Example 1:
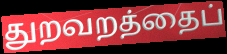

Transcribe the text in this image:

துறவறத்தைப்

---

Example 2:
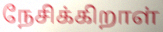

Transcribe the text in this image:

நேசிக்கிறாள்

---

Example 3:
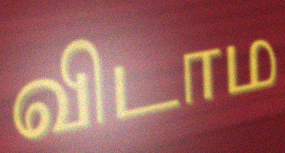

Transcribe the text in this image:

விடாம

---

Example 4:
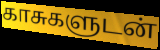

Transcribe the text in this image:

காசுகளுடன்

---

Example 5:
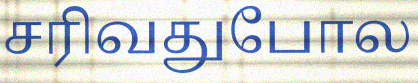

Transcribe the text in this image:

சரிவதுபோல